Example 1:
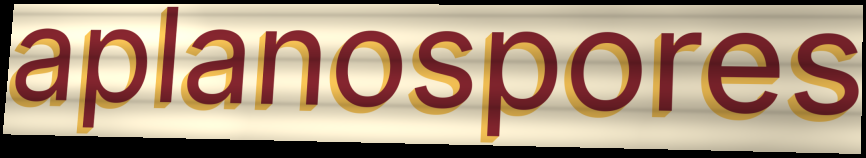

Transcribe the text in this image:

aplanospores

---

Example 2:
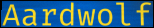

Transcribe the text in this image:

Aardwolf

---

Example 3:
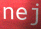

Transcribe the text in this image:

nej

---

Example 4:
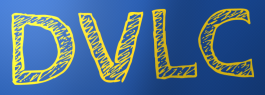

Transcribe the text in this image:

DVLC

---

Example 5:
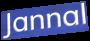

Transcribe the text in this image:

Jannal